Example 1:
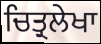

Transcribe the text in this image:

ਚਿਤ੍ਰਲੇਖਾ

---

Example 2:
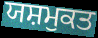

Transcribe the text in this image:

ਯਸ਼ਮੁਕਤ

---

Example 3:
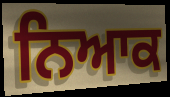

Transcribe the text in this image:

ਨਿਆਕ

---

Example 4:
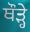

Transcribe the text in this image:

ਥੌੜ੍ਹੇ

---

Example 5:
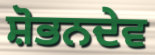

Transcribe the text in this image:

ਸ਼ੋਭਨਦੇਵ